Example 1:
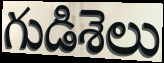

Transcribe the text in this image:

గుడిశెలు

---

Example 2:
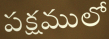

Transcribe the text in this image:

పక్షములో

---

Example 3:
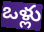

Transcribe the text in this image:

ఒళ్లు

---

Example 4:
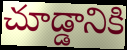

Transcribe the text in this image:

చూడ్డానికి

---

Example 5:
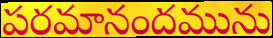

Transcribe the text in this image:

పరమానందమును